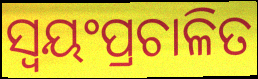
ସ୍ୱୟଂପ୍ରଚାଳିତ